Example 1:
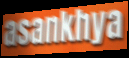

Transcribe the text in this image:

asankhya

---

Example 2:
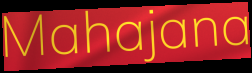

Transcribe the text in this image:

Mahajana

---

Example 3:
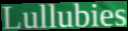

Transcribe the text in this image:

Lullubies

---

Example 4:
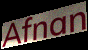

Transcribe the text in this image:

Afnan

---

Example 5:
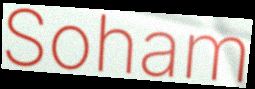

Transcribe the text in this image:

Soham